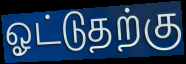
ஓட்டுதற்கு